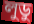
লুডু